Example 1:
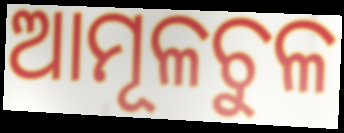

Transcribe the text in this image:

ଆମୂଳଚୁଳ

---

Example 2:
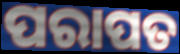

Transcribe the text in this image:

ପରାପତ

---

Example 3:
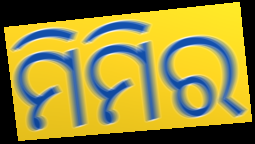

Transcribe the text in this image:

ମିମିର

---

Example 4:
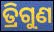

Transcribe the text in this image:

ତ୍ରିଗୁଣ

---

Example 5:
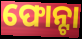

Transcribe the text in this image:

ଫୋନ୍ଟା